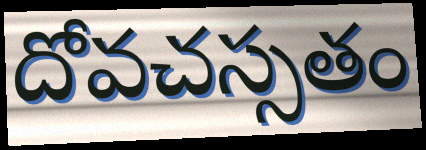
దోవచస్సతం